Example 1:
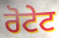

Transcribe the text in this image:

ਰੋਟੇਟ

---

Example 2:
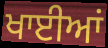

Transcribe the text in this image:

ਖਾਈਆਂ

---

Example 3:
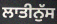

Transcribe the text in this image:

ਲਾਤੀਨੁੱਸ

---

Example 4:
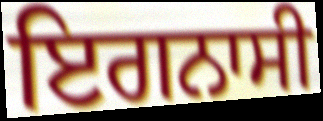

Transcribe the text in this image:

ਇਗਨਾਸੀ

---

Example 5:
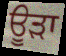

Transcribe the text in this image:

ਊੜਾ